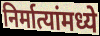
निर्मात्यांमध्ये